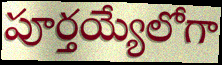
పూర్తయ్యేలోగా